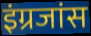
इंग्रजांस